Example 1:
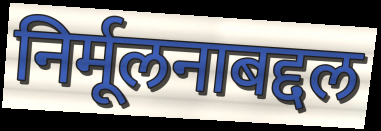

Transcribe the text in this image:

निर्मूलनाबद्दल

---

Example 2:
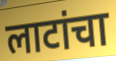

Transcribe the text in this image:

लाटांचा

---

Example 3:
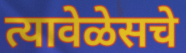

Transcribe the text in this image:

त्यावेळेसचे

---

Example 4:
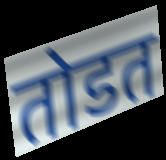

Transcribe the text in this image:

तोडत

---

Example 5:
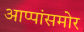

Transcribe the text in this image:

आप्पांसमोर